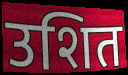
उशित